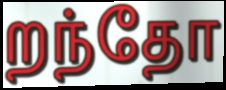
றந்தோ